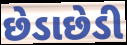
છેડાછેડી